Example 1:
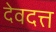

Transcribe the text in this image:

देवदत्त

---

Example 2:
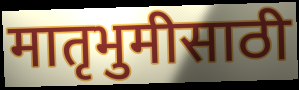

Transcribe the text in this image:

मातृभुमीसाठी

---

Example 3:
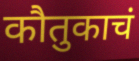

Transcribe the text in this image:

कौतुकाचं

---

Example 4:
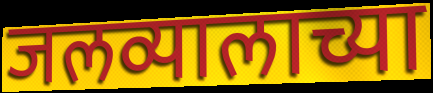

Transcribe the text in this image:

जलव्यालाच्या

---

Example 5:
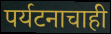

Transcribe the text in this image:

पर्यटनाचाही